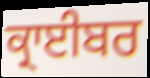
ਕ੍ਰਾਈਬਰ